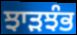
ਝਾੜਝੰਭ